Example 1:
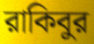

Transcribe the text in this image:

রাকিবুর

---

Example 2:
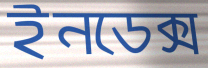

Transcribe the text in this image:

ইনডেক্স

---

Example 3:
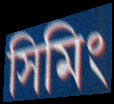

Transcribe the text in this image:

সিমিং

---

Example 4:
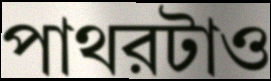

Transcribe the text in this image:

পাথরটাও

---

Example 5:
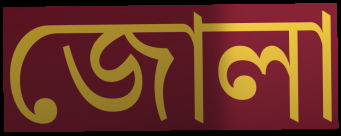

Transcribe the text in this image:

জোলা